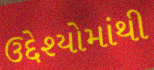
ઉદ્દેશ્યોમાંથી